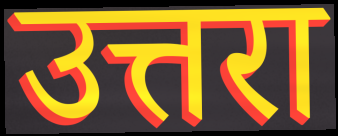
उत्तरा